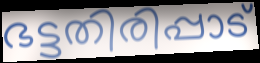
ഭട്ടതിരിപ്പാട്